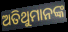
ଅତିଥୁମାନଙ୍କ